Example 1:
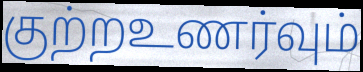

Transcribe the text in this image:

குற்றஉணர்வும்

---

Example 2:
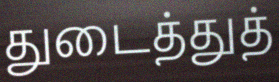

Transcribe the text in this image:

துடைத்துத்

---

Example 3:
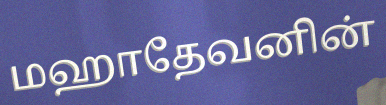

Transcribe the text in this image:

மஹாதேவனின்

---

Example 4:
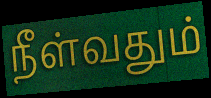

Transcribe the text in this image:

நீள்வதும்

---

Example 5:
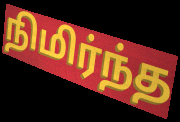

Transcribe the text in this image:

நிமிர்ந்த